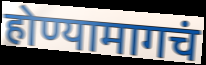
होण्यामागचं